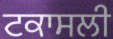
ਟਕਾਸਲੀ